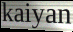
kaiyan